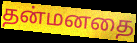
தன்மனதை